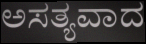
ಅಸತ್ಯವಾದ